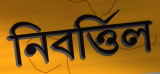
নিবর্ত্তিল